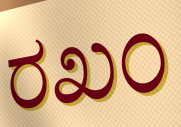
ರಖಂ